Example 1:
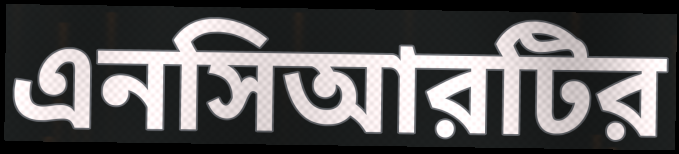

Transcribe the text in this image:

এনসিআরটির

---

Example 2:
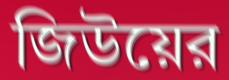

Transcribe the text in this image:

জিউয়ের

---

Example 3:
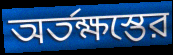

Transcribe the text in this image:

অর্তক্ষস্তের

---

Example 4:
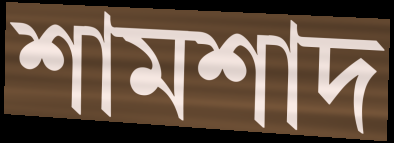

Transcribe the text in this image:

শামশাদ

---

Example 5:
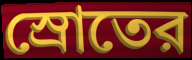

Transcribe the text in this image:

স্রোতের